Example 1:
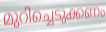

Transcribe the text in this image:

മുറിച്ചെടുക്കണം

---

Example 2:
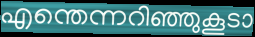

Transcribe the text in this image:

എന്തെന്നറിഞ്ഞുകൂടാ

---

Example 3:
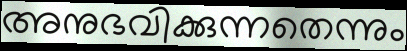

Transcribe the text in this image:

അനുഭവിക്കുന്നതെന്നും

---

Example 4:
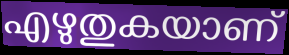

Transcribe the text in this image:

എഴുതുകയാണ്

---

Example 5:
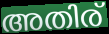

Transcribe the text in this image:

അതിര്